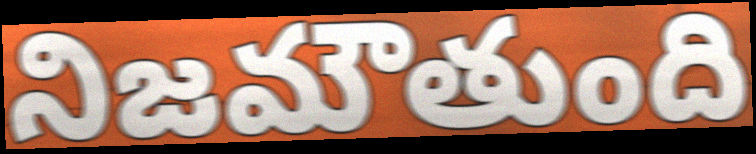
నిజమౌతుంది